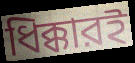
ধিক্কারই